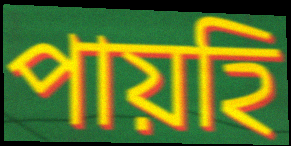
পায়হি